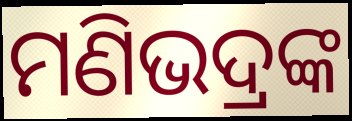
ମଣିଭଦ୍ରଙ୍କ